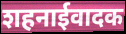
शहनाईवादक